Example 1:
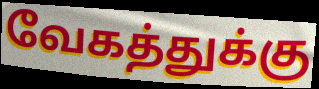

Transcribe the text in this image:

வேகத்துக்கு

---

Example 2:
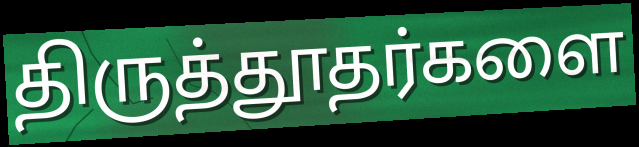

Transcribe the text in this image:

திருத்தூதர்களை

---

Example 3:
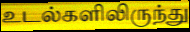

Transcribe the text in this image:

உடல்களிலிருந்து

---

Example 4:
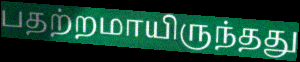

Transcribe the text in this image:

பதற்றமாயிருந்தது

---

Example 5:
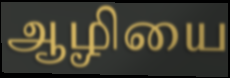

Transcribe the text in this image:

ஆழியை